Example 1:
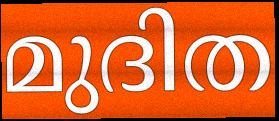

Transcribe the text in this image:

മുദിത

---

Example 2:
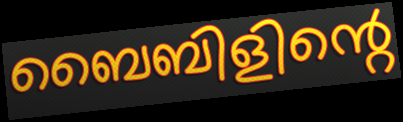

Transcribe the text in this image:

ബൈബിളിന്റെ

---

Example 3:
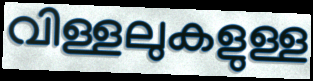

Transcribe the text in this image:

വിള്ളലുകളുള്ള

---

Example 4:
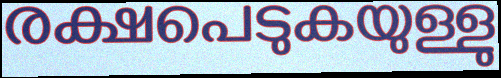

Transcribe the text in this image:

രക്ഷപെടുകയുള്ളു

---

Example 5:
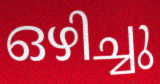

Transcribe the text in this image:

ഒഴിച്ചു